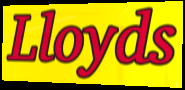
Lloyds